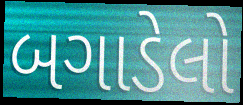
બગાડેલો